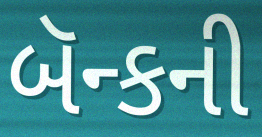
બૅન્કની